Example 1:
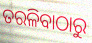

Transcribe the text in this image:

ତରଳିବାଠାରୁ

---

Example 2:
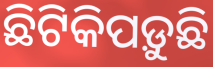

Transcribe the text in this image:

ଛିଟିକିପଡ଼ୁଛି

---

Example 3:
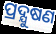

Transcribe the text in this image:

ପ୍ରଦ୍ଯୁଷଣ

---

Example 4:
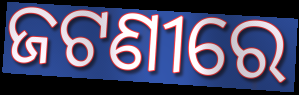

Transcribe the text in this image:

ଜଟଣୀରେ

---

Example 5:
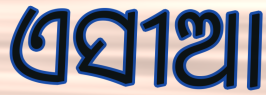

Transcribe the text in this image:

ଏସୀଆ